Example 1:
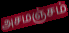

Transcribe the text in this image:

அசமஞ்சம்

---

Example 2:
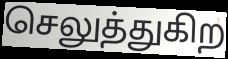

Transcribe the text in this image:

செலுத்துகிற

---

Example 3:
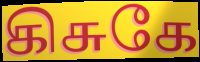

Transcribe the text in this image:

கிசுகே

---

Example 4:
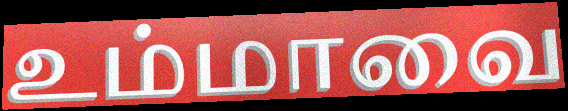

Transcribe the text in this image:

உம்மாவை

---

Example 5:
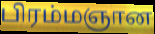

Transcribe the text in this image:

பிரம்மஞான